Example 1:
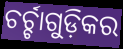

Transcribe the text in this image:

ଚର୍ଚ୍ଚାଗୁଡ଼ିକର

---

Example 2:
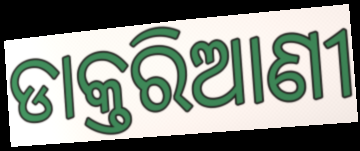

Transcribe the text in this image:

ଡାକ୍ତରିଆଣୀ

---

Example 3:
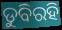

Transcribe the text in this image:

ଡୁବିରହି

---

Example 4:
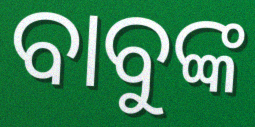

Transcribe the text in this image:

ବାବୁଙ୍କ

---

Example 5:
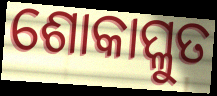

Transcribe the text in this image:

ଶୋକାପ୍ଳୁତ